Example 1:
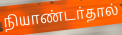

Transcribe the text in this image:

நியாண்டர்தால்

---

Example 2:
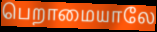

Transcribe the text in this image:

பெறாமையாலே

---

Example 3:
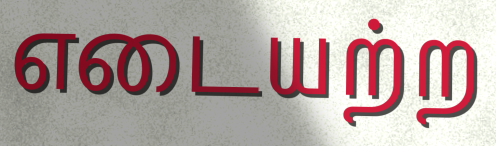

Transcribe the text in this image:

எடையற்ற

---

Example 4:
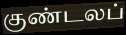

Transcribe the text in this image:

குண்டலப்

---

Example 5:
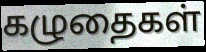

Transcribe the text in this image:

கழுதைகள்